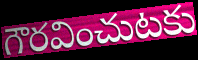
గౌరవించుటకు